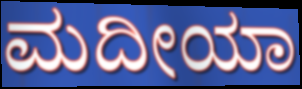
ಮದೀಯಾ